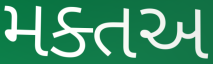
મક્તઅ